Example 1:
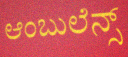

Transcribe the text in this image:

ಆಂಬುಲೆನ್ಸ್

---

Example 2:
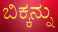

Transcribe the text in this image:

ಬಿಕ್ಕನ್ನು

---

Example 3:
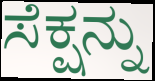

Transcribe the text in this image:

ಸೆಕ್ಷನ್ನು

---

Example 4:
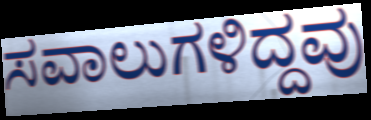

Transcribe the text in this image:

ಸವಾಲುಗಳಿದ್ದವು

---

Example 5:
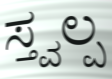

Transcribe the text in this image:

ಸ್ತ್ವಲ್ಪ